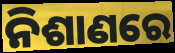
ନିଶାଣରେ